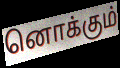
னொக்கும்